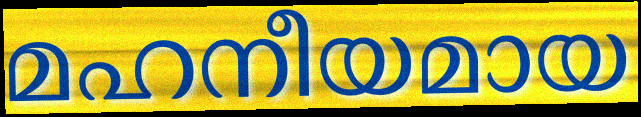
മഹനീയമായ